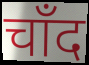
चाँद